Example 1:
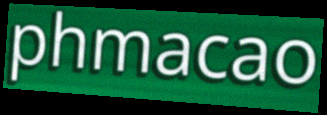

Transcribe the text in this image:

phmacao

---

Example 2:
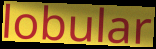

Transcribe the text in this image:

lobular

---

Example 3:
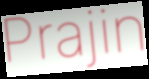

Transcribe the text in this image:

Prajin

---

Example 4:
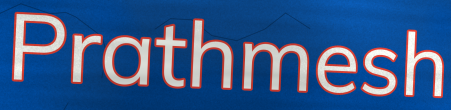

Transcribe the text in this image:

Prathmesh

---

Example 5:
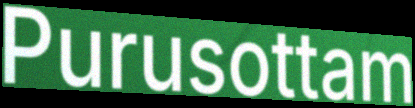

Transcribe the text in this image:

Purusottam